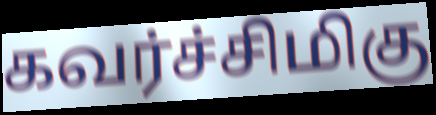
கவர்ச்சிமிகு